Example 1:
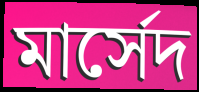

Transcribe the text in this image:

মার্সেদ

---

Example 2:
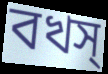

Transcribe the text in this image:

বখস্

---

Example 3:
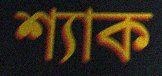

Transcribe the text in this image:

শ্যাক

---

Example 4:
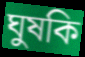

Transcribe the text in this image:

ঘুষকি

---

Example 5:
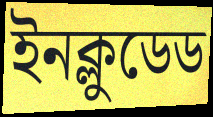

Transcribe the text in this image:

ইনক্লুডেড